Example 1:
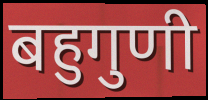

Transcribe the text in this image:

बहुगुणी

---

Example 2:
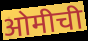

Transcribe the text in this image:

ओमीची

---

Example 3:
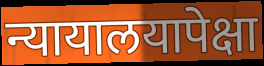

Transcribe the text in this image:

न्यायालयापेक्षा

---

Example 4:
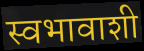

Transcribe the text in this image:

स्वभावाशी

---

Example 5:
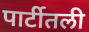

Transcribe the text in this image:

पार्टीतली